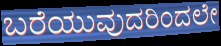
ಬರೆಯುವುದರಿಂದಲೇ